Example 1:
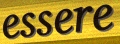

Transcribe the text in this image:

essere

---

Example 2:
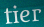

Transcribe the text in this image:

tier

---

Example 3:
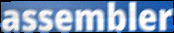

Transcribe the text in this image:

assembler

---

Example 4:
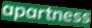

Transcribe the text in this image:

apartness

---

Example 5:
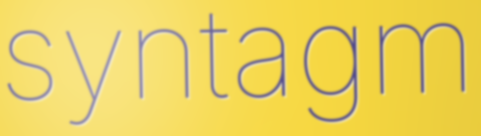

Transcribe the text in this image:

syntagm